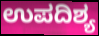
ಉಪದಿಶ್ಯ